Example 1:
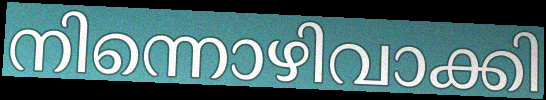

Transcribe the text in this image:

നിന്നൊഴിവാക്കി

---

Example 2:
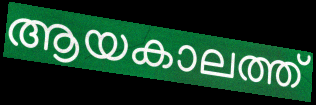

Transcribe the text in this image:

ആയകാലത്ത്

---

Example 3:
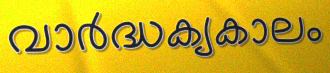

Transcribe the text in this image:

വാർദ്ധക്യകാലം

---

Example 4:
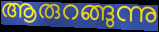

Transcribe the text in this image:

ആരുറങ്ങുന്നു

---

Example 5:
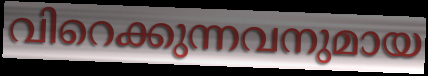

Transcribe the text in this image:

വിറെക്കുന്നവനുമായ